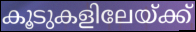
കൂടുകളിലേയ്ക്ക്